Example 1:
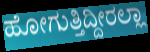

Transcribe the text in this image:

ಹೋಗುತ್ತಿದ್ದೀರಲ್ಲಾ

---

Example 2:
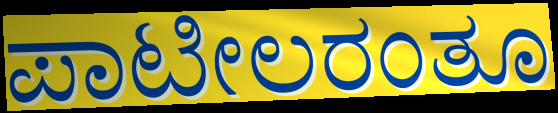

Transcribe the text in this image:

ಪಾಟೀಲರಂತೂ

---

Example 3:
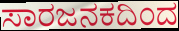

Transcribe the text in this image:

ಸಾರಜನಕದಿಂದ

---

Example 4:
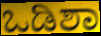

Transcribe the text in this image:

ಒಡಿಶಾ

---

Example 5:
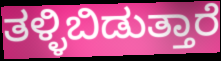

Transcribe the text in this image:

ತಳ್ಳಿಬಿಡುತ್ತಾರೆ